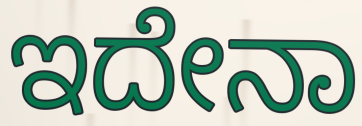
ಇದೇನಾ